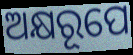
ଅକ୍ଷରୂପେ